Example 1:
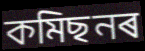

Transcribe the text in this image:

কমিছনৰ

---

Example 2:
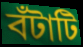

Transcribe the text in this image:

বঁটাটি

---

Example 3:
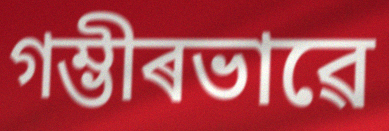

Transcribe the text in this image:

গম্ভীৰভাৱে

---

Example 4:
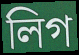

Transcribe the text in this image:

লিগ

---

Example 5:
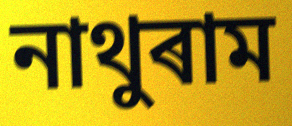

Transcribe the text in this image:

নাথুৰাম